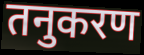
तनुकरण